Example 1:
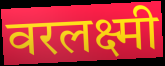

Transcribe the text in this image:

वरलक्ष्‍मी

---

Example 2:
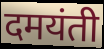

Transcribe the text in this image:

दमयंती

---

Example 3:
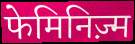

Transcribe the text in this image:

फेमिनिज़्म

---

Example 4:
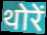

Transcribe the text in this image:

थोरें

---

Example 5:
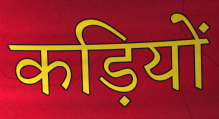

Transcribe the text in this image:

कड़ियों